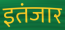
इतंजार